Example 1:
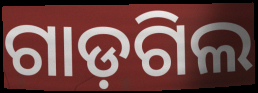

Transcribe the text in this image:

ଗାଡ଼ଗିଲ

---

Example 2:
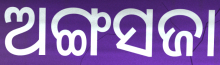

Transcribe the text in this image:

ଅଙ୍ଗସଜା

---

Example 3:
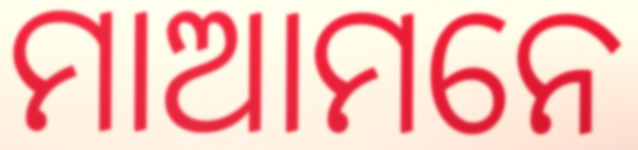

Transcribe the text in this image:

ମାଆମନେ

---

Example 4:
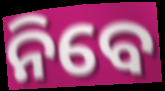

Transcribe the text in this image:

ନିବେ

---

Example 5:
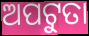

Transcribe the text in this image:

ଅପଟୁତା